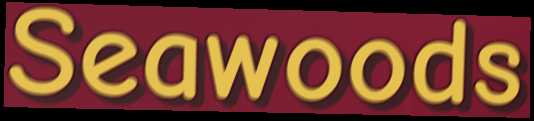
Seawoods